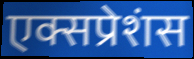
एक्सप्रेशंस